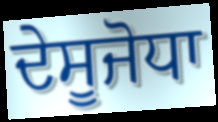
ਦੇਸੂਜੋਧਾ